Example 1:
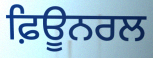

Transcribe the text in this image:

ਫ਼ਿਊਨਰਲ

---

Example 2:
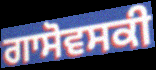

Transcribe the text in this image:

ਗਾਸੋਵਸਕੀ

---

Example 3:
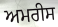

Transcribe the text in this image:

ਅਮਰੀਸ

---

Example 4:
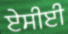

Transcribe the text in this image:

ਏਸੀਈ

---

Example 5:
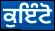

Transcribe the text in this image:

ਕੁਇੰਟੋ